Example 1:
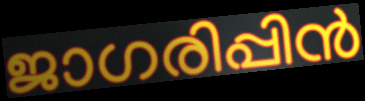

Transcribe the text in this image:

ജാഗരിപ്പിൻ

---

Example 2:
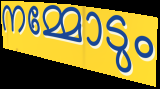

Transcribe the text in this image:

നമ്മോടും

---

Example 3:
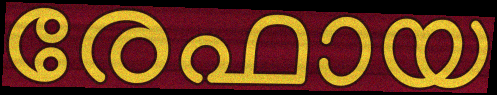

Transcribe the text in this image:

രേഫായ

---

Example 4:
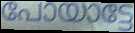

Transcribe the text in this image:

പോയാട്ടേ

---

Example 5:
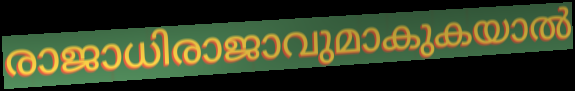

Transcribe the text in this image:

രാജാധിരാജാവുമാകുകയാൽ